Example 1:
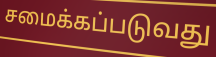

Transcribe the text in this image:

சமைக்கப்படுவது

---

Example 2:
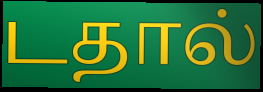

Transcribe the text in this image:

டதால்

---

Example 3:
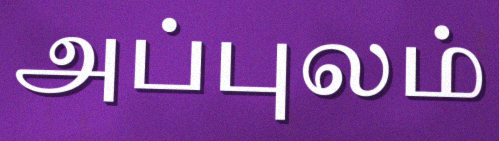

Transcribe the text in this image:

அப்புலம்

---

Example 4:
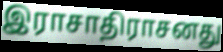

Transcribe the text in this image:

இராசாதிராசனது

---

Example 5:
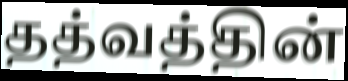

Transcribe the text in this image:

தத்வத்தின்